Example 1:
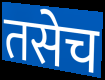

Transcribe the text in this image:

तसेच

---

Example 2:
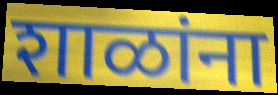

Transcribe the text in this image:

शाळांना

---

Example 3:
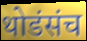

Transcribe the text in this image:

थोडंसंच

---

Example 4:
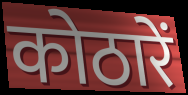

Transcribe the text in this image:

कोठारें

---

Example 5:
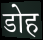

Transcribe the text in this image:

डोह